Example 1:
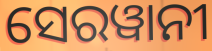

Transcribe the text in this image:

ସେରୱାନୀ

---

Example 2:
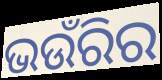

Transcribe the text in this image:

ଭଉଁରିର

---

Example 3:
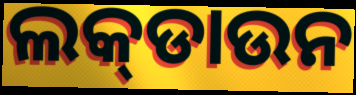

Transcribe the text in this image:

ଲକ୍‍ଡାଉନ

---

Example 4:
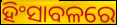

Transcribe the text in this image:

ହିଂସାବଳରେ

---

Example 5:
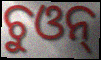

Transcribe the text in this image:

ଚୁଓନ୍